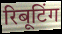
रिबूटिंग